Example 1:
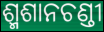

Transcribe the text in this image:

ଶ୍ମଶାନଚଣ୍ଡୀ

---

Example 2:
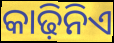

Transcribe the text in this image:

କାଢ଼ିନିଏ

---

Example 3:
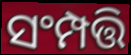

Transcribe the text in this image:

ସଂମ୍ପତ୍ତି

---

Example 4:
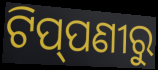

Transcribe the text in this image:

ଟିପ୍‌ପଣୀରୁ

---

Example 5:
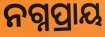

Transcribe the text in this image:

ନଗ୍ନପ୍ରାୟ